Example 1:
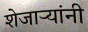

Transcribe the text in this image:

शेजाऱ्यांनी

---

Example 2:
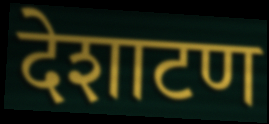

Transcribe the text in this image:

देशाटण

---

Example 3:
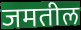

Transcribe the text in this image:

जमतील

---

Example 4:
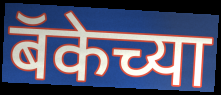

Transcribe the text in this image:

बॅकेच्या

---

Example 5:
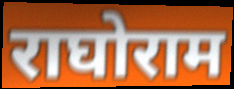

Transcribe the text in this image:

राघोराम